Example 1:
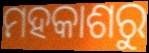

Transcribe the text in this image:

ମହକାଶରୁ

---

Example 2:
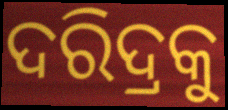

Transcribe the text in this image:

ଦରିଦ୍ରକୁ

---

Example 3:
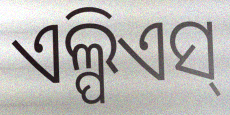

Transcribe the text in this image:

ଏଲ୍ପିଏସ୍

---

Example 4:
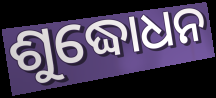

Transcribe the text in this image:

ଶୁଦ୍ଧୋଧନ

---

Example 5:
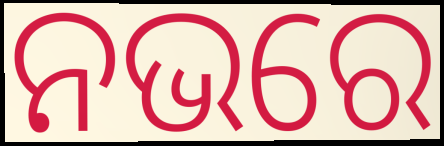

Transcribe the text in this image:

ନଭରେ